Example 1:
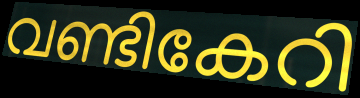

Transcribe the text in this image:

വണ്ടികേറി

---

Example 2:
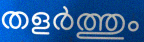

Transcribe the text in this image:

തളർത്തും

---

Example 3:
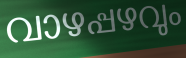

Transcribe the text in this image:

വാഴപ്പഴവും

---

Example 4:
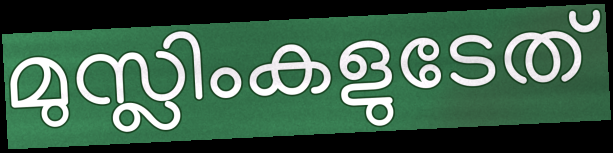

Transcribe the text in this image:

മുസ്ലിംകളുടേത്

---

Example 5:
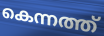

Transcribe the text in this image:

കെന്നത്ത്